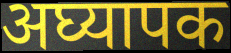
अघ्यापक